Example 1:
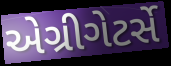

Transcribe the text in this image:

એગ્રીગેટર્સે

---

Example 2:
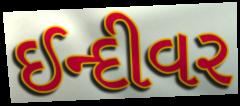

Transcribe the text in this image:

ઈન્દીવર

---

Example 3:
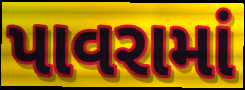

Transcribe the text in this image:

પાવરામાં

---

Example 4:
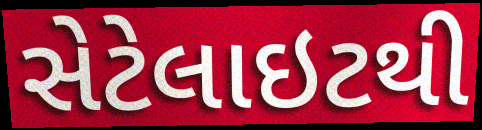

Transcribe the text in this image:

સેટેલાઇટથી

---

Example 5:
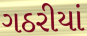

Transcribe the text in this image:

ગઠરીયાં